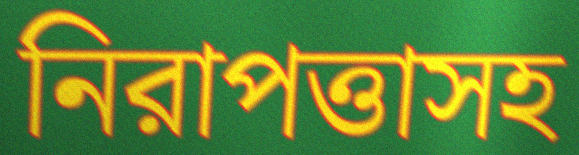
নিরাপত্তাসহ